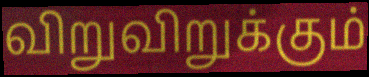
விறுவிறுக்கும்